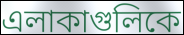
এলাকাগুলিকে